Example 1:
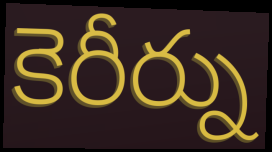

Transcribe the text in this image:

కెరీర్ను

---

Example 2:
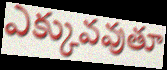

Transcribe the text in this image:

ఎక్కువవుతూ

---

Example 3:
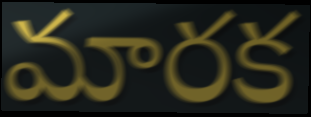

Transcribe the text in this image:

మారక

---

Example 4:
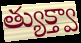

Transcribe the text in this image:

త్యుక్త్వా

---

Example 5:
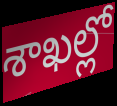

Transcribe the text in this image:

శాఖల్లో